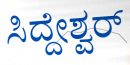
ಸಿದ್ದೇಶ್ವರ್